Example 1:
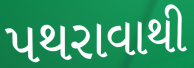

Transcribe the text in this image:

પથરાવાથી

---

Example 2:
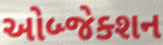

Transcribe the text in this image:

ઓબ્જેક્શન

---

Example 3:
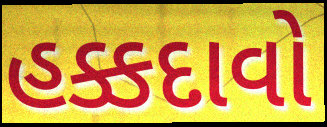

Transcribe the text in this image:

હક્કદાવો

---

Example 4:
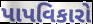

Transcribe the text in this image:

પાપવિકારો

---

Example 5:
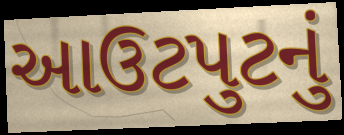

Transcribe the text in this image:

આઉટપુટનું